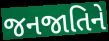
જનજાતિને